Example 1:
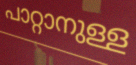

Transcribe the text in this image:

പാറ്റാനുള്ള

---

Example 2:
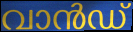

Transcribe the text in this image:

വാൻഡ്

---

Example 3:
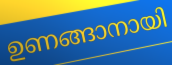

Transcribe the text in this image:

ഉണങ്ങാനായി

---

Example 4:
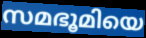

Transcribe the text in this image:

സമഭൂമിയെ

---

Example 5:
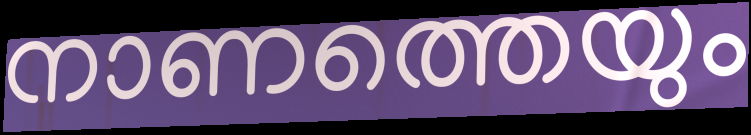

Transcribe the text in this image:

നാണത്തെയും